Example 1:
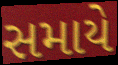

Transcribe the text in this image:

સમાયે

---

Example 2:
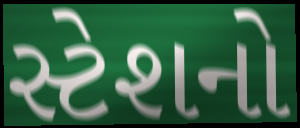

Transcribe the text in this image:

સ્ટેશનો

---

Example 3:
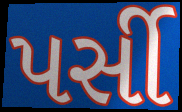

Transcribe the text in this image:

પર્સી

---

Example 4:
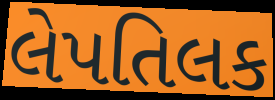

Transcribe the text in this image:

લેપતિલક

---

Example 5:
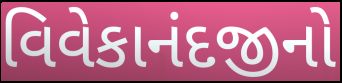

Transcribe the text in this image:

વિવેકાનંદજીનો